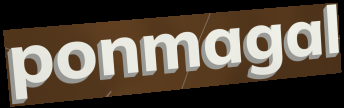
ponmagal